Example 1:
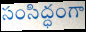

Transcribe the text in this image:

సంసిద్ధంగా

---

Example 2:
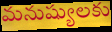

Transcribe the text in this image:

మనుష్యులకు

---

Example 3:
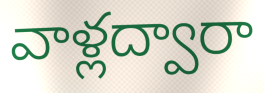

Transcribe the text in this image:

వాళ్లద్వారా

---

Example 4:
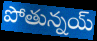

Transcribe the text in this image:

పోతున్నయ్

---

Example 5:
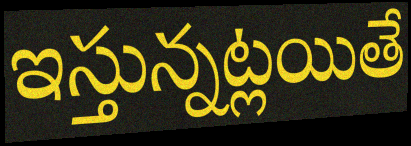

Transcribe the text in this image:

ఇస్తున్నట్లయితే